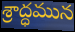
శ్రాద్ధమున